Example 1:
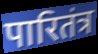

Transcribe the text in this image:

पारितंत्र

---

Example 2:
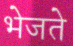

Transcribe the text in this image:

भेजते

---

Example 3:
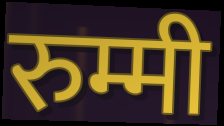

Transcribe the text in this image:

रुम्मी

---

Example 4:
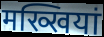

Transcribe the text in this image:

मख्खियां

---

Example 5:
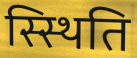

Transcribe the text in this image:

स्स्थिति